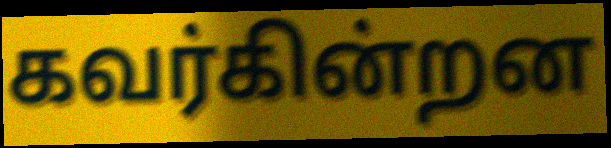
கவர்கின்றன